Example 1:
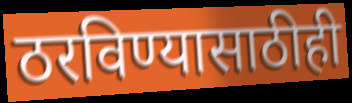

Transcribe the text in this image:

ठरविण्यासाठीही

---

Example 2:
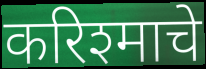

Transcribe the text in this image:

करिश्माचे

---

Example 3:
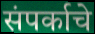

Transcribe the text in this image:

संपर्काचे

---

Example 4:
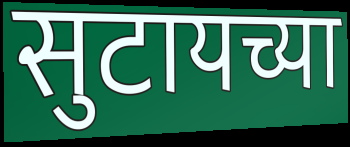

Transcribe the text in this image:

सुटायच्या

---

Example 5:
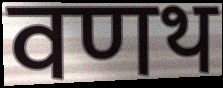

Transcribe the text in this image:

वणथ